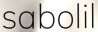
sabolil